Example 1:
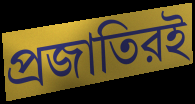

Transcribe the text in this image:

প্রজাতিরই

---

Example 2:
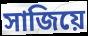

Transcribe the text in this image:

সাজিয়ে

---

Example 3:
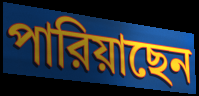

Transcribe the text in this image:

পারিয়াছেন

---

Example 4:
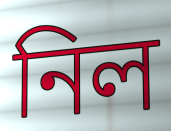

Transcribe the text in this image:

নিল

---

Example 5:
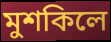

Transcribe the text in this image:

মুশকিলে